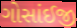
ગોસાંઈજી